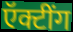
ऍक्टींग